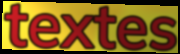
textes